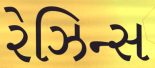
રેઝિન્સ